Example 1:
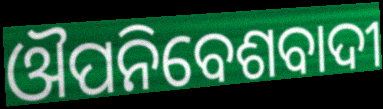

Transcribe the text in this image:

ଔପନିବେଶବାଦୀ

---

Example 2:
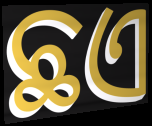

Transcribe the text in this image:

ଛଏ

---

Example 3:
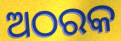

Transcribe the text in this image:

ଅଠରକ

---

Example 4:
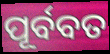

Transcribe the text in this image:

ପୂର୍ବବତ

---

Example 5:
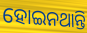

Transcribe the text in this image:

ହୋଇନଥାନ୍ତି